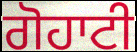
ਗੋਹਾਟੀ